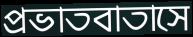
প্রভাতবাতাসে